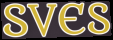
SVES